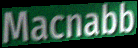
Macnabb